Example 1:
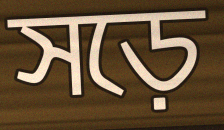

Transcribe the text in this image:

সড়ে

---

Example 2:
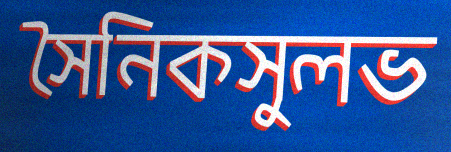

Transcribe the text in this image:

সৈনিকসুলভ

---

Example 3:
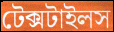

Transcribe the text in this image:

টেক্সটাইলস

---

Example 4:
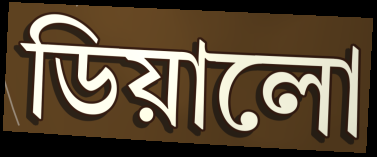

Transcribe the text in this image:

ডিয়ালো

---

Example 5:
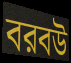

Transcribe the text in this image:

বরবউ